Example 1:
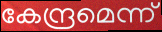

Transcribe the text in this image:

കേന്ദ്രമെന്ന്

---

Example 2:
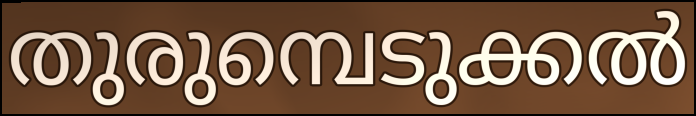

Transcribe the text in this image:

തുരുമ്പെടുക്കൽ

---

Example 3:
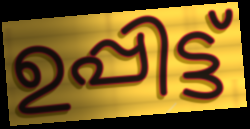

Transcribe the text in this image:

ഉപ്പിട്ട്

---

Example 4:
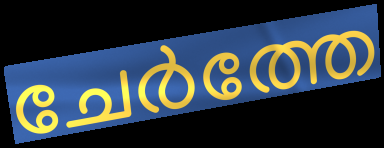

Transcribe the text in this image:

ചേർത്തേ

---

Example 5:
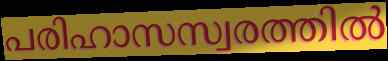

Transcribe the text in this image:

പരിഹാസസ്വരത്തിൽ